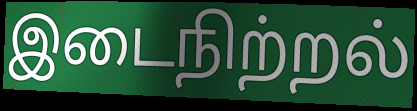
இடைநிற்றல்